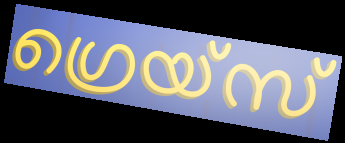
ഗ്രെയ്സ്